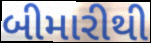
બીમારીથી